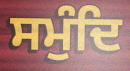
ਸਮੁੰਦਿ